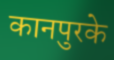
कानपुरके